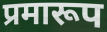
प्रमारूप